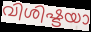
വിശിഷ്ടയാ